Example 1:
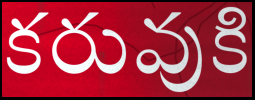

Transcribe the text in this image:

కరువుకి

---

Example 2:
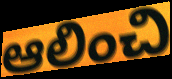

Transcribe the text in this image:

ఆలించి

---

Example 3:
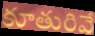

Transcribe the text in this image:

కూతురివే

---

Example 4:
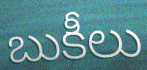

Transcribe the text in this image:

బుకీలు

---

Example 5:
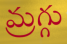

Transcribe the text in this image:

మ్రగ్గు